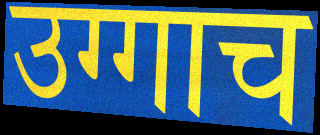
उग्गाच